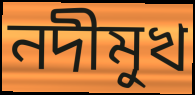
নদীমুখ